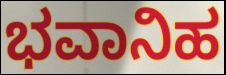
ಭವಾನಿಹ